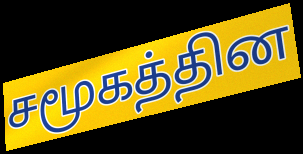
சமூகத்தின